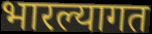
भारल्यागत